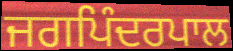
ਜਗਪਿੰਦਰਪਾਲ